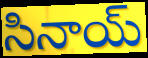
సినాయ్